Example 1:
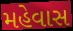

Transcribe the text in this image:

મહેવાસ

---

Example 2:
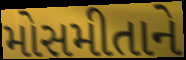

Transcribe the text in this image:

મોસમીતાને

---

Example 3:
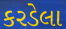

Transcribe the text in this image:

કરડેલા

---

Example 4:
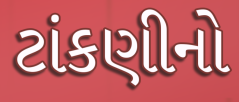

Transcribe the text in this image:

ટાંકણીનો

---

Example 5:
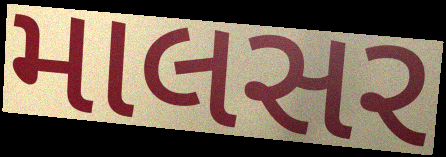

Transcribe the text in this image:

માલસર